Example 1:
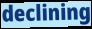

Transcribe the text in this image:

declining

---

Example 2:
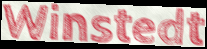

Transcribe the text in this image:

Winstedt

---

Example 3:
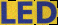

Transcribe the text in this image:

LED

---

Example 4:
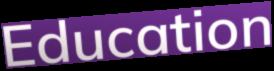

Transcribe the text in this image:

Education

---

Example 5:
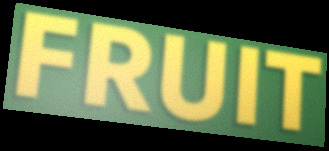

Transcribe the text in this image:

FRUIT